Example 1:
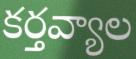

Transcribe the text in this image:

కర్తవ్యాల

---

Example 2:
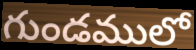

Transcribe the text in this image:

గుండములో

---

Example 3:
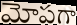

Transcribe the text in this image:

మోపగా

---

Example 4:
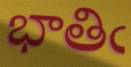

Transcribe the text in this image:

భాతిఁ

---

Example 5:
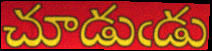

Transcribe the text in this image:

చూడుఁడు